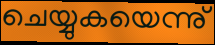
ചെയ്യുകയെന്നു്